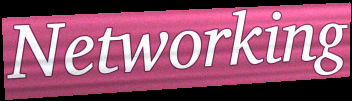
Networking